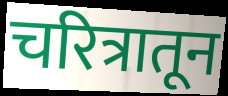
चरित्रातून